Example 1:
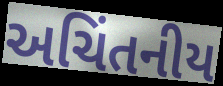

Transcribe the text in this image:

અચિંતનીય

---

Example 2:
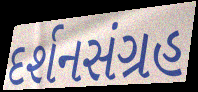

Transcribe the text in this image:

દર્શનસંગ્રહ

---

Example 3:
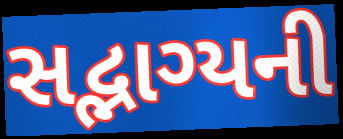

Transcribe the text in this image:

સદ્ભાગ્યની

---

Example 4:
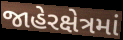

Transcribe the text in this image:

જાહેરક્ષેત્રમાં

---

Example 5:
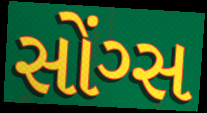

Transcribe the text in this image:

સોંગ્સ